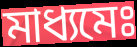
মাধ্যমেঃ